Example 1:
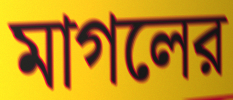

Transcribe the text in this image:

মাগলের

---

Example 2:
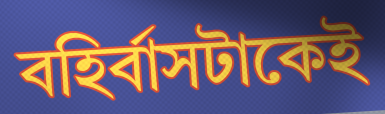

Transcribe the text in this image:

বহির্বাসটাকেই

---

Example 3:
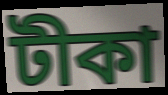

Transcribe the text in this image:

টীকা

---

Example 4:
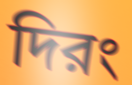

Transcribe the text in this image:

দিরং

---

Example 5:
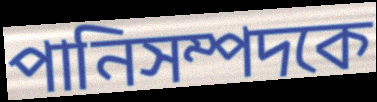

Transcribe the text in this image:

পানিসম্পদকে